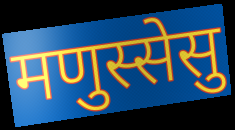
मणुस्सेसु